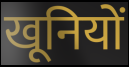
खूनियों